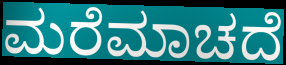
ಮರೆಮಾಚದೆ